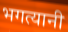
भगत्यानी